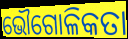
ଭୌଗୋଳିକତା